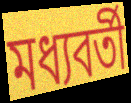
মধ্যবর্তী